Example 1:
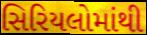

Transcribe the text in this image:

સિરિયલોમાંથી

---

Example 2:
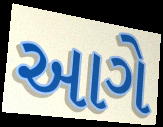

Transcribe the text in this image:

આગે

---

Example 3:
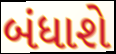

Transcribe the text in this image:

બંધાશે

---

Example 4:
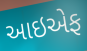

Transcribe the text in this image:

આઇએફ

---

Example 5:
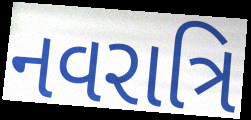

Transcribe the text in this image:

નવરાત્રિ